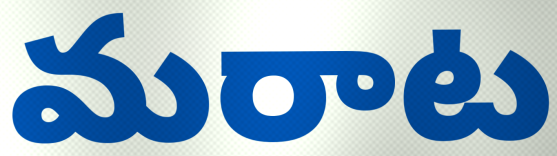
మరాట